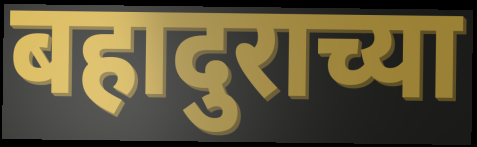
बहादुराच्या